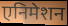
एनिमेशन